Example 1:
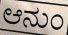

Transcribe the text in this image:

ಆನುಂ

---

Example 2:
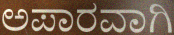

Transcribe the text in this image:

ಅಪಾರವಾಗಿ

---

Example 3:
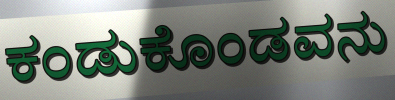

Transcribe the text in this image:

ಕಂಡುಕೊಂಡವನು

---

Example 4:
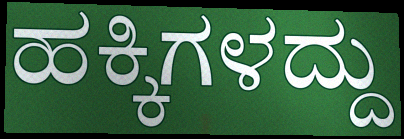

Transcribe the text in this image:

ಹಕ್ಕಿಗಳದ್ದು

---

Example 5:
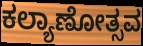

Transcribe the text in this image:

ಕಲ್ಯಾಣೋತ್ಸವ